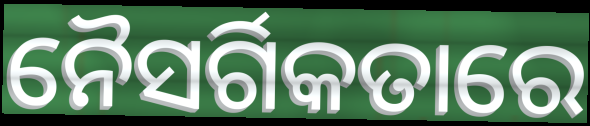
ନୈସର୍ଗିକତାରେ